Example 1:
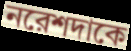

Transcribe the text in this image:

নরেশদাকে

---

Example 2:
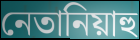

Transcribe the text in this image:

নেতানিয়াহু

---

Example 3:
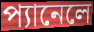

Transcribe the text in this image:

প্যানেলে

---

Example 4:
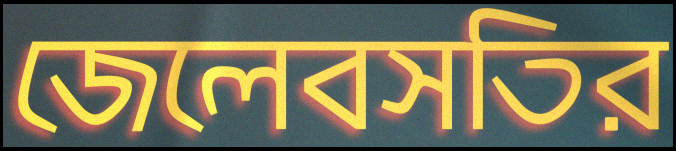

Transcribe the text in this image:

জেলেবসতির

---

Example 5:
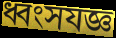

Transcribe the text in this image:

ধ্বংসযজ্ঞ